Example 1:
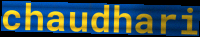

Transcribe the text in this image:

chaudhari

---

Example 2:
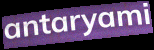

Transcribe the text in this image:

antaryami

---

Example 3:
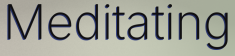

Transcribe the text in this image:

Meditating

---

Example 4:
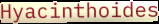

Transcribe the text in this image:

Hyacinthoides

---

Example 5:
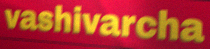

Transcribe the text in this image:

vashivarcha